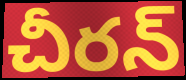
చీరన్